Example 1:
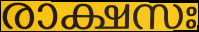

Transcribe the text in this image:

രാക്ഷസഃ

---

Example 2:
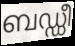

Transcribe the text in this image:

ബഡ്ഡീ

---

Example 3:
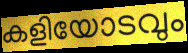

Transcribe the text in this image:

കളിയോടവും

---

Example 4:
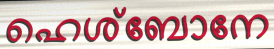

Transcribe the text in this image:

ഹെശ്ബോനേ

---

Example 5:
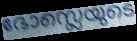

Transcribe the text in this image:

ഭോസ്ലെയുടെ